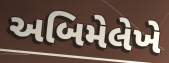
અબિમેલેખે